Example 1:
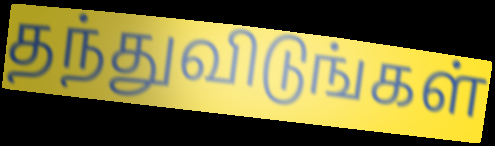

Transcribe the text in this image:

தந்துவிடுங்கள்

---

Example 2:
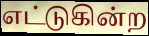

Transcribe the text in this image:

எட்டுகின்ற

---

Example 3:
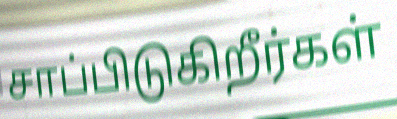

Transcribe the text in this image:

சாப்பிடுகிறீர்கள்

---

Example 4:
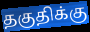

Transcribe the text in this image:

தகுதிக்கு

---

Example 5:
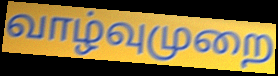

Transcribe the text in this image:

வாழ்வுமுறை